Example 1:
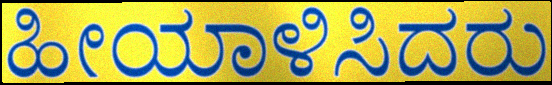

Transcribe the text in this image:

ಹೀಯಾಳಿಸಿದರು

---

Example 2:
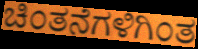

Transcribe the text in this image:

ಚಿಂತನೆಗಳಿಗಿಂತ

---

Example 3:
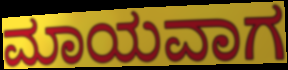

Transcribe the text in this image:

ಮಾಯವಾಗ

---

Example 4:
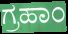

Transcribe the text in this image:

ಗ್ರಹಾಂ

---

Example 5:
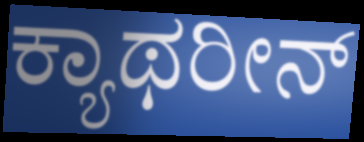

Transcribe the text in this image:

ಕ್ಯಾಥರೀನ್